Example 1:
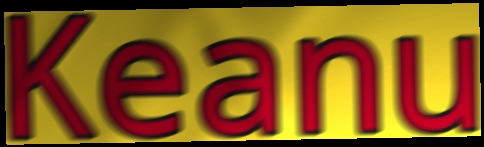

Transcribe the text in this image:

Keanu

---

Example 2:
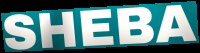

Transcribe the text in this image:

SHEBA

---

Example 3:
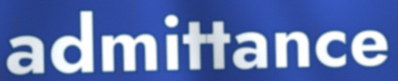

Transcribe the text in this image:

admittance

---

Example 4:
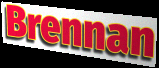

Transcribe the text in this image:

Brennan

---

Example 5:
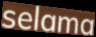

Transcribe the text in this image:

selama